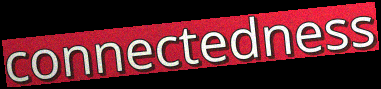
connectedness